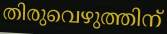
തിരുവെഴുത്തിന്